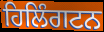
ਹਿਲਿੰਗਟਨ